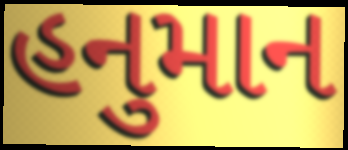
હનુમાન